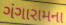
ગંગારામના